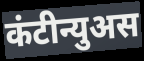
कंटीन्युअस